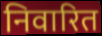
निवारित